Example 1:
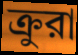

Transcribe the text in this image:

ক্রুরা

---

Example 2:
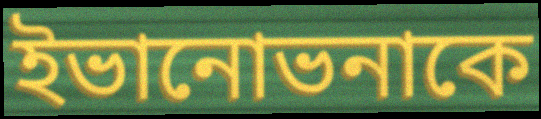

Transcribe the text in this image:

ইভানোভনাকে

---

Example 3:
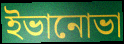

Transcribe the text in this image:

ইভানোভা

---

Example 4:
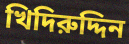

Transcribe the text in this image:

খিদিরুদ্দিন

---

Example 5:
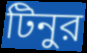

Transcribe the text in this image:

টিনুর